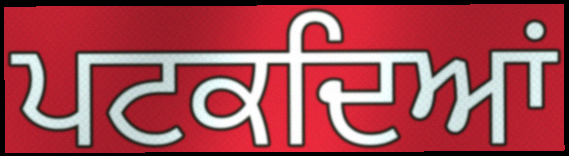
ਪਟਕਦਿਆਂ